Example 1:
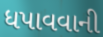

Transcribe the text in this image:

ધપાવવાની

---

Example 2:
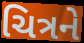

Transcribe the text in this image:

ચિત્રને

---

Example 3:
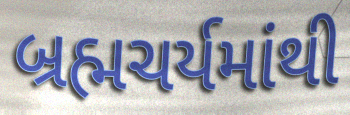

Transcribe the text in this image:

બ્રહ્મચર્યમાંથી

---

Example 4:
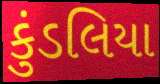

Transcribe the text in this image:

કુંડલિયા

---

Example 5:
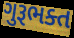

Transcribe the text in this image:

ગુરૂભક્ત